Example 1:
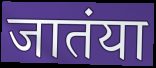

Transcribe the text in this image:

जातंया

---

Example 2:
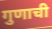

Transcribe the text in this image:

गुणाची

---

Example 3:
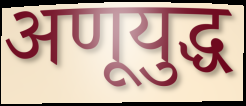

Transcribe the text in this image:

अणूयुद्ध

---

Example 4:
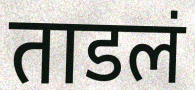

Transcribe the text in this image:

ताडलं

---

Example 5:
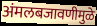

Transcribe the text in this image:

अंमलबजावणीमुळे